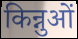
किन्नुओं